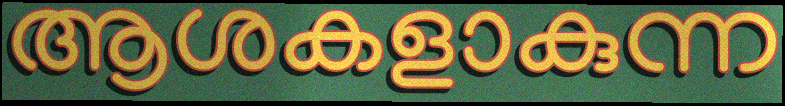
ആശകളാകുന്ന